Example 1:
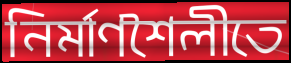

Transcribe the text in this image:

নির্মাণশৈলীতে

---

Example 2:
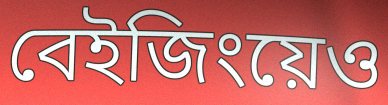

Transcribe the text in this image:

বেইজিংয়েও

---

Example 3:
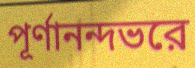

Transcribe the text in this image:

পূর্ণানন্দভরে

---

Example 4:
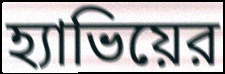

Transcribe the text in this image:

হ্যাভিয়ের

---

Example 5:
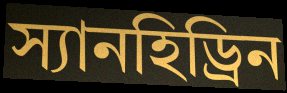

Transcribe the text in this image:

স্যানহিড্রিন